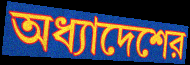
অধ্যাদেশের